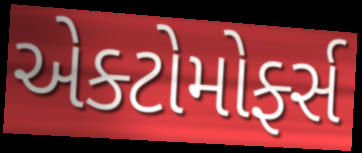
એક્ટોમોર્ફ્સ